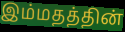
இம்மதத்தின்